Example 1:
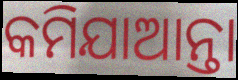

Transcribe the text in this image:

କମିଯାଆନ୍ତା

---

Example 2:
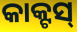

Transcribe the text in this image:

କାକ୍ଟସ୍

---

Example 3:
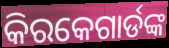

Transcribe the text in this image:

କିରକେଗାର୍ଡଙ୍କ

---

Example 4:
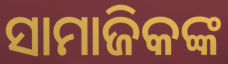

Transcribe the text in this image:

ସାମାଜିକଙ୍କ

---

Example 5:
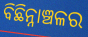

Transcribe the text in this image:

ବିଛିନ୍ନାଞ୍ଚଳର